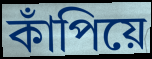
কাঁপিয়ে